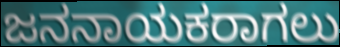
ಜನನಾಯಕರಾಗಲು